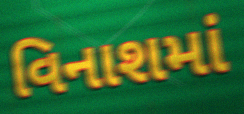
વિનાશમાં